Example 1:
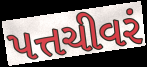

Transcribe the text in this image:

પત્તચીવરં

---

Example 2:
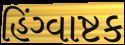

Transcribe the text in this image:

હિંગ્વાષ્ટક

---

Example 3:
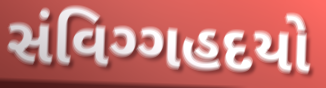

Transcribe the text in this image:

સંવિગ્ગહદયો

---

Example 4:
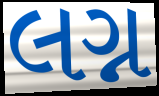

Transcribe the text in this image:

લગ્ન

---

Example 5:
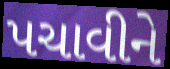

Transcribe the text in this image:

પચાવીને